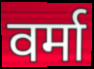
वर्मा